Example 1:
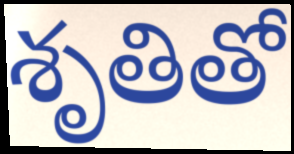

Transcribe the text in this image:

శృతితో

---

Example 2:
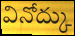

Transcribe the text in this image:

వినోద్కు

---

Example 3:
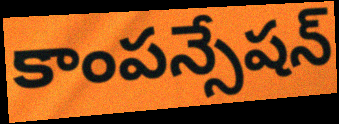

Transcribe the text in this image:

కాంపన్సేషన్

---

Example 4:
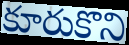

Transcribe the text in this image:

కూరుకొని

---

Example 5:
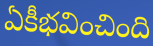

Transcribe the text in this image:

ఏకీభవించింది